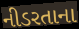
નીડરતાના